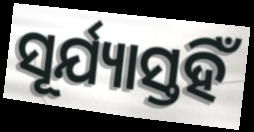
ସୂର୍ଯ୍ୟାସ୍ତହିଁ